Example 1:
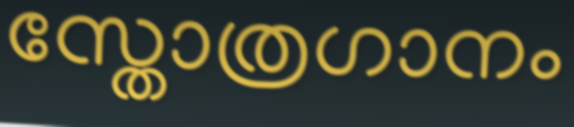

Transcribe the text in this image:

സ്തോത്രഗാനം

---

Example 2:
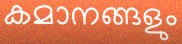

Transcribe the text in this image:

കമാനങ്ങളും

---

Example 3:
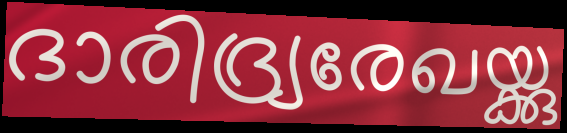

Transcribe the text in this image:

ദാരിദ്ര്യരേഖയ്ക്കു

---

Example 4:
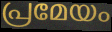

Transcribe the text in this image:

പ്രമേയം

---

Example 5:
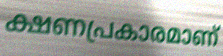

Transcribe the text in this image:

ക്ഷണപ്രകാരമാണ്